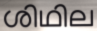
ശിഥില